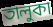
তালুকা